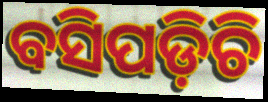
ବସିପଡ଼ିଚି